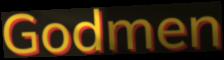
Godmen